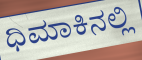
ಧಿಮಾಕಿನಲ್ಲಿ